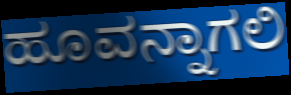
ಹೂವನ್ನಾಗಲಿ